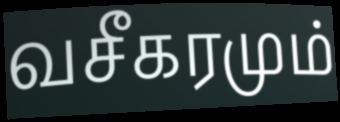
வசீகரமும்